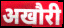
अखौरी